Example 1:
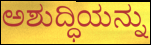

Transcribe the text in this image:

ಅಶುದ್ಧಿಯನ್ನು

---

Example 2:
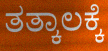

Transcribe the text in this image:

ತತ್ಕಾಲಕ್ಕೆ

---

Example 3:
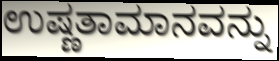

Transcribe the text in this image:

ಉಷ್ಣತಾಮಾನವನ್ನು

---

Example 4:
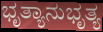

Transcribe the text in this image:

ಭೃತ್ಯಾನುಭೃತ್ಯ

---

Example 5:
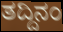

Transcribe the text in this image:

ತದ್ದಿನಂ